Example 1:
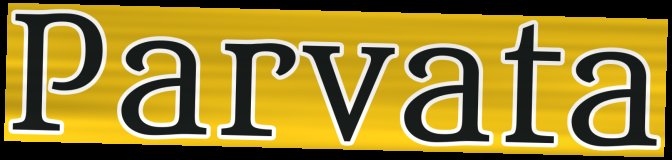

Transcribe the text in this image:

Parvata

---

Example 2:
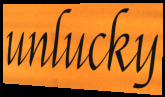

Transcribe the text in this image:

unlucky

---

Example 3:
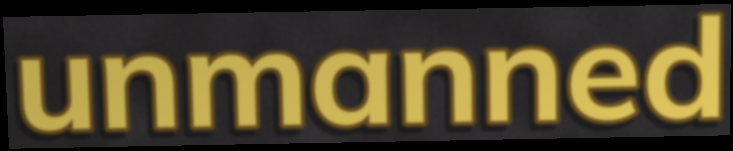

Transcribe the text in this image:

unmanned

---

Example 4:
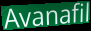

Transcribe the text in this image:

Avanafil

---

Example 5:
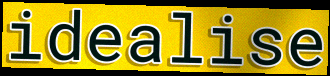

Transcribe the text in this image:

idealise